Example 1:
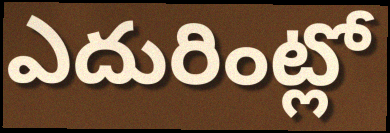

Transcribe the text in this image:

ఎదురింట్లో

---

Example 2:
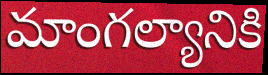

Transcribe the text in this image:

మాంగల్యానికి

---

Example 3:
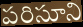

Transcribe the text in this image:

పరిసూని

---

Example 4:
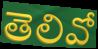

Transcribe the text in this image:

తెలివో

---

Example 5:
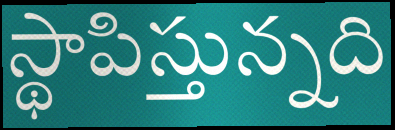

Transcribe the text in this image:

స్థాపిస్తున్నది